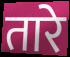
तारे